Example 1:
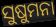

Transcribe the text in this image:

ସୁଷୁମନା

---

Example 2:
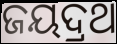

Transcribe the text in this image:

ଜୟଦ୍ରଥ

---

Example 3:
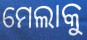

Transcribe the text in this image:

ମେଲାକୁ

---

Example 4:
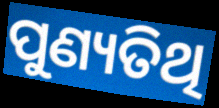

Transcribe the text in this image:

ପୁଣ୍ୟତିଥି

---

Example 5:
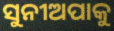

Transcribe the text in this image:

ସୁନୀଅପାକୁ